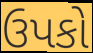
ઉપકો